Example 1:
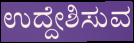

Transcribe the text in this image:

ಉದ್ದೇಶಿಸುವ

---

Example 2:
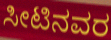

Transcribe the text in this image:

ಸೀಟಿನವರ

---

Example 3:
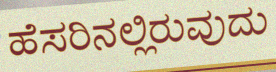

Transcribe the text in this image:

ಹೆಸರಿನಲ್ಲಿರುವುದು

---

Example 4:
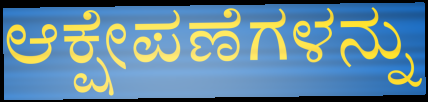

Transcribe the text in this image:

ಆಕ್ಷೇಪಣೆಗಳನ್ನು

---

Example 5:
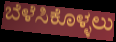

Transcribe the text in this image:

ಬೆಳೆಸಿಕೊಳ್ಳಲು